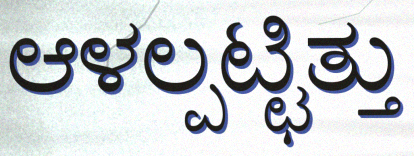
ಆಳಲ್ಪಟ್ಟಿತ್ತು